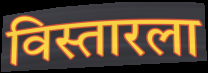
विस्तारला